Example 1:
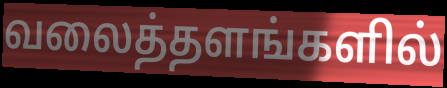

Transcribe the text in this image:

வலைத்தளங்களில்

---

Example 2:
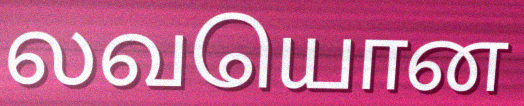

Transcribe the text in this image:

லவயொன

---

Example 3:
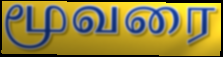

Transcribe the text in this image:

மூவரை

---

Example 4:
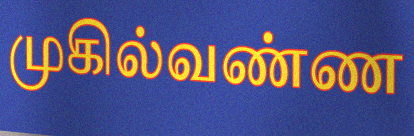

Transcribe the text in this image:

முகில்வண்ண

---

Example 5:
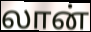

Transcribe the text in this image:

லான்